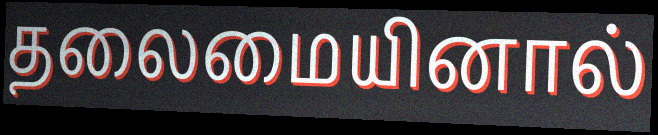
தலைமையினால்